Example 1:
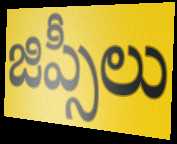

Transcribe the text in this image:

జిప్సీలు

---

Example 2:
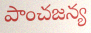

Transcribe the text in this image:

పాంచజన్య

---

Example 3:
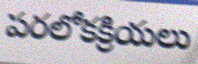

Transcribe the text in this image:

పరలోకక్రియలు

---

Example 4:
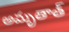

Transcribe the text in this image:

అమృతాత్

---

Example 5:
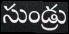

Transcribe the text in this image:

సుండ్రు